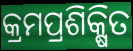
କ୍ରମପ୍ରଶିକ୍ଷିତ